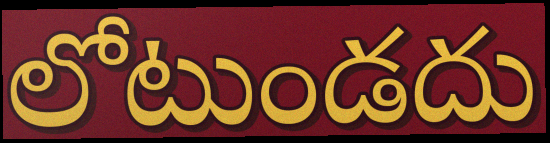
లోటుండదు